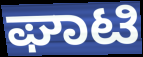
ಘಾಟಿ